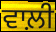
ਵਾਲ਼ੀ